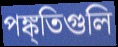
পঙ্ক্তিগুলি